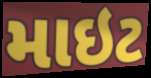
માઇટ